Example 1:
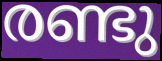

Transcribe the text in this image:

രണ്ടു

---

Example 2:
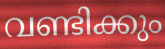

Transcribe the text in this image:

വണ്ടിക്കും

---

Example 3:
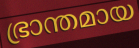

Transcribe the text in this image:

ഭ്രാന്തമായ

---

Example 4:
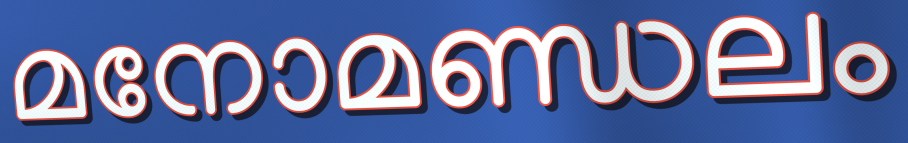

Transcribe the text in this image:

മനോമണ്ഡലം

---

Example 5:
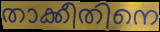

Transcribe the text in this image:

താക്കീതിനെ